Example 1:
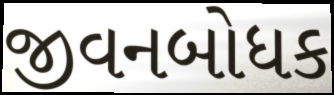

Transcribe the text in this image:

જીવનબોધક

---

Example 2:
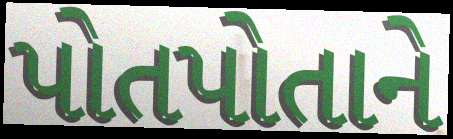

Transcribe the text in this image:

પોતપોતાને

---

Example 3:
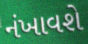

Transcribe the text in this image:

નંખાવશે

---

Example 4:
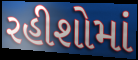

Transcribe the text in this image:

રહીશોમાં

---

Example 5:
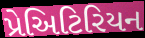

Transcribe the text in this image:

પ્રેઅિટિરિયન